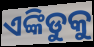
ଏଙ୍କିଡୁକୁ